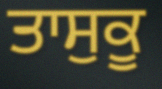
ਤਾਸੁਕੂ